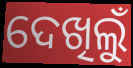
ଦେଖିଲୁଁ